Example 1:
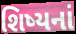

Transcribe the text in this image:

શિષ્યનાં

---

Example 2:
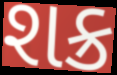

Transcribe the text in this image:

શક્ર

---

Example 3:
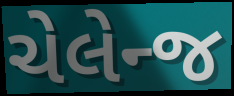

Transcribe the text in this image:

ચેલેન્જ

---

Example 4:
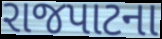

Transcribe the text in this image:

રાજપાટના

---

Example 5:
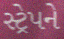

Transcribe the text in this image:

સ્ટ્રેપને